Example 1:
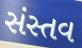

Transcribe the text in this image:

સંસ્તવ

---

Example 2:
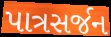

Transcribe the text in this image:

પાત્રસર્જન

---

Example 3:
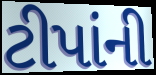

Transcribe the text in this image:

ટીપાંની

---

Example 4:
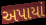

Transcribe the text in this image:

અપાયાં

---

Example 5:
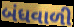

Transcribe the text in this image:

બંધવાળી